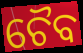
ଚୈବ